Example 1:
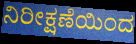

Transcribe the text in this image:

ನಿರೀಕ್ಷಣೆಯಿಂದ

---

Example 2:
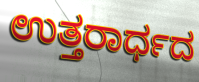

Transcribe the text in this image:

ಉತ್ತರಾರ್ಧದ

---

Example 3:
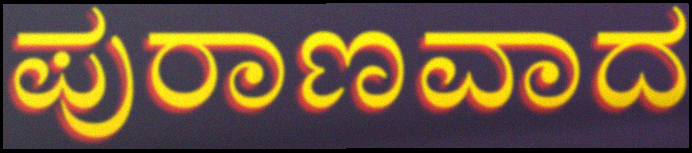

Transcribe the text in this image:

ಪುರಾಣವಾದ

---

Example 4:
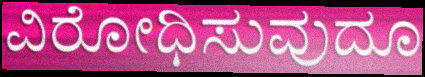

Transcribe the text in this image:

ವಿರೋಧಿಸುವುದೂ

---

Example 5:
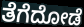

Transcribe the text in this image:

ತೆಗೆದೋಡೆ